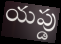
యప్డు